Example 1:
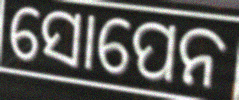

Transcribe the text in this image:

ସୋପେନ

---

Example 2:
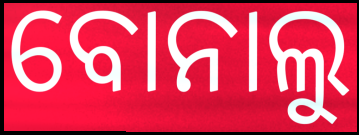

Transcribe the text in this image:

ବୋନାଲୁ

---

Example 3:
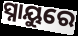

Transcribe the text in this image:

ସ୍ନାୟୁରେ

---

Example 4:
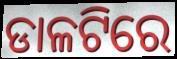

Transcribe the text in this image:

ଡାଳଟିରେ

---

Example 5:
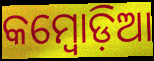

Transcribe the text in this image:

କମ୍ୱୋଡ଼ିଆ